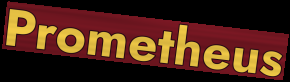
Prometheus